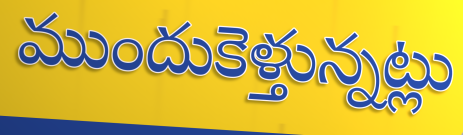
ముందుకెళ్తున్నట్లు